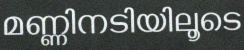
മണ്ണിനടിയിലൂടെ